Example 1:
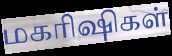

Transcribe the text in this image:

மகரிஷிகள்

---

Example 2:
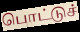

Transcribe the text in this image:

பொட்டுச்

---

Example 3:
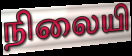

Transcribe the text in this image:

நிலையி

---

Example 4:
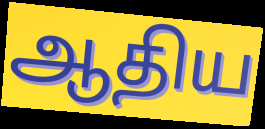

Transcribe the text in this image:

ஆதிய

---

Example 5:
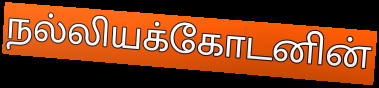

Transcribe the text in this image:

நல்லியக்கோடனின்